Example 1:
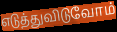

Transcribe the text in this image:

எடுத்துவிடுவோம்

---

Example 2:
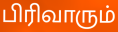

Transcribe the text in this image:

பிரிவாரும்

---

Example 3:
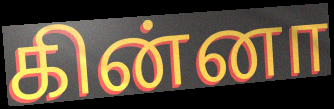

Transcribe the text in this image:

கின்னா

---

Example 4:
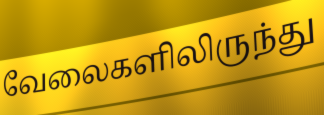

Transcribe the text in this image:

வேலைகளிலிருந்து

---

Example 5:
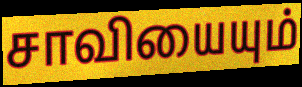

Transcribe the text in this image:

சாவியையும்